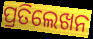
ପ୍ରତିଲେଖନ